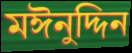
মঈনুদ্দিন